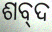
ଶବ୍‍ଦ